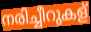
നരിച്ചീറുകള്